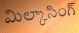
మిల్కాసింగ్